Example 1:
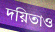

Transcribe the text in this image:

দয়িতাও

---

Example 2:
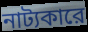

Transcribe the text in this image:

নাট্যকারে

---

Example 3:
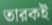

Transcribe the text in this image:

তারকই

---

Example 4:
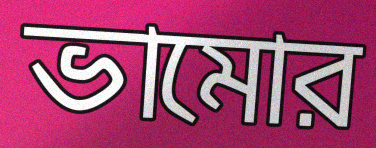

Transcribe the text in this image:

ভামোর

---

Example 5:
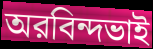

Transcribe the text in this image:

অরবিন্দভাই